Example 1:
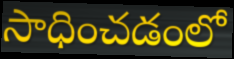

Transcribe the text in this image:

సాధించడంలో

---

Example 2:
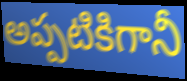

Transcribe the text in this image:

అప్పటికిగానీ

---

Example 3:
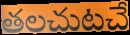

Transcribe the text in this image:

తలచుటచే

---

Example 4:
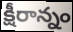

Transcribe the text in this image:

క్షీరాన్నం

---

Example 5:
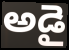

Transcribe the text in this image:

అడై